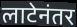
लाटेनंतर